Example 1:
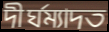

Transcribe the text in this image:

দীৰ্ঘম্যাদত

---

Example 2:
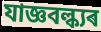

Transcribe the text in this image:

যাজ্ঞবল্ক্যৰ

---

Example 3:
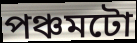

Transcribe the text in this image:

পঞ্চমটো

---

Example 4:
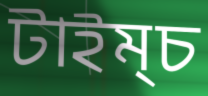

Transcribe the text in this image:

টাইম্‌চ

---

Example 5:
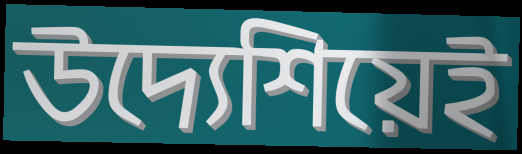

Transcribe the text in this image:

উদ্যেশিয়েই